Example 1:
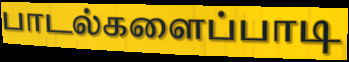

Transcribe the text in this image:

பாடல்களைப்பாடி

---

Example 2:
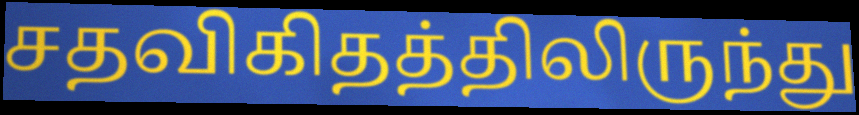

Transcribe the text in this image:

சதவிகிதத்திலிருந்து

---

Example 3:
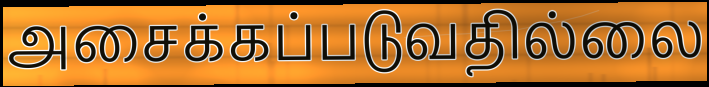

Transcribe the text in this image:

அசைக்கப்படுவதில்லை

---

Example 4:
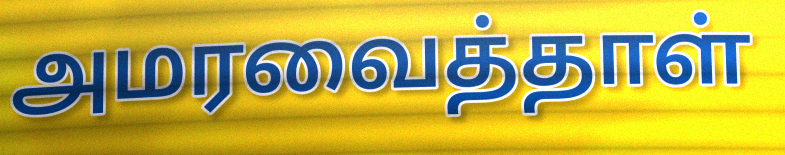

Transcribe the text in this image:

அமரவைத்தாள்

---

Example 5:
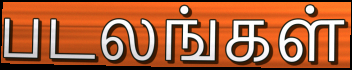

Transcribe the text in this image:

படலங்கள்